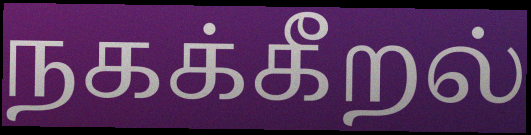
நகக்கீறல்